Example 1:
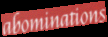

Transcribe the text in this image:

abominations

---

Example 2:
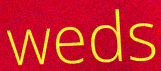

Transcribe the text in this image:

weds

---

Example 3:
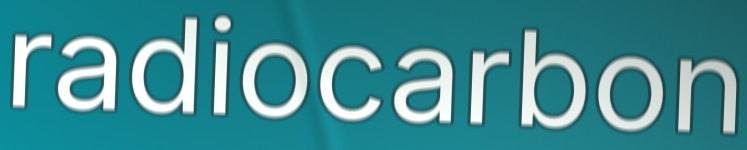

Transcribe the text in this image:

radiocarbon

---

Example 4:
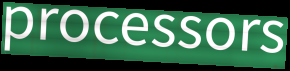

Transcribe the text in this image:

processors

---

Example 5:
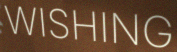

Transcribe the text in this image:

WISHING